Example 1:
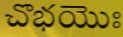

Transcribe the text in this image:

చొభయొః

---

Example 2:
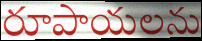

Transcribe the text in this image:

రూపాయలను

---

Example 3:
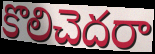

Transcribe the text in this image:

కొలిచెదరా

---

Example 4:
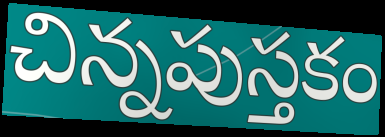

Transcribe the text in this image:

చిన్నపుస్తకం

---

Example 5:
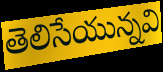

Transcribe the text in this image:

తెలిసేయున్నవి